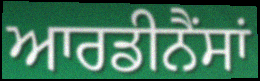
ਆਰਡੀਨੈਂਸਾਂ